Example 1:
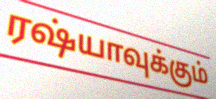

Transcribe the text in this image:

ரஷ்யாவுக்கும்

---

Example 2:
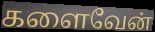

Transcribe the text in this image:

களைவேன்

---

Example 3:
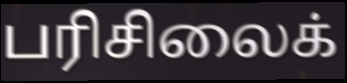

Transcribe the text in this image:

பரிசிலைக்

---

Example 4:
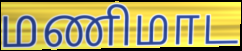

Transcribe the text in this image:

மணிமாட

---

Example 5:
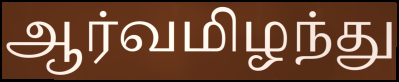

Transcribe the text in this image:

ஆர்வமிழந்து